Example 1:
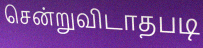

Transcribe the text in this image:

சென்றுவிடாதபடி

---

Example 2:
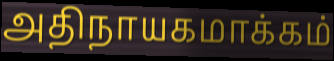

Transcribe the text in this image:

அதிநாயகமாக்கம்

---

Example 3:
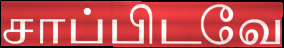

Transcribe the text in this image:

சாப்பிடவே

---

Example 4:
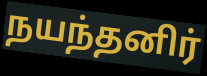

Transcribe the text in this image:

நயந்தனிர்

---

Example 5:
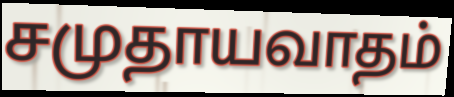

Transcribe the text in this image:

சமுதாயவாதம்